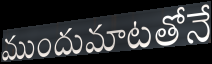
ముందుమాటతోనే